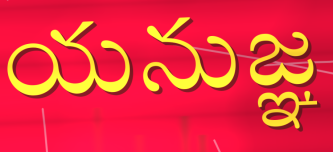
యనుజ్ఞ